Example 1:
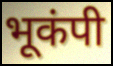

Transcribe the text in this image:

भूकंपी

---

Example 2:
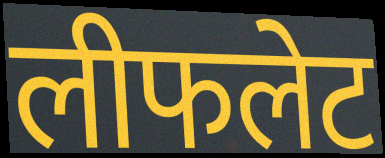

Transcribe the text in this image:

लीफलेट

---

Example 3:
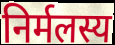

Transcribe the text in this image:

निर्मलस्य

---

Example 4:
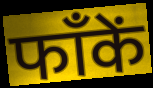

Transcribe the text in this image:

फाँकें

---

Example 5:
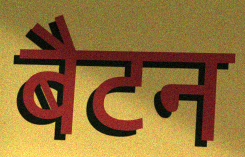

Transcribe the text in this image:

बैटन